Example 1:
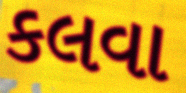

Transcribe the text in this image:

કલવા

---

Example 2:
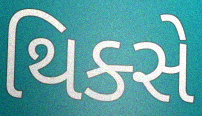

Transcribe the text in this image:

થિક્સે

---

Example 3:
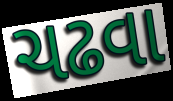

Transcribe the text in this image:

ચઢવા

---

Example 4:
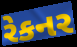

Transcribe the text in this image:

રેકનર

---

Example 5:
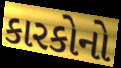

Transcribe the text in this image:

કારકોનો